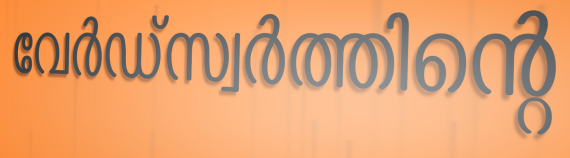
വേർഡ്സ്വർത്തിന്റെ